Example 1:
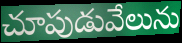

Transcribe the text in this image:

చూపుడువేలును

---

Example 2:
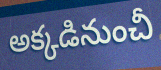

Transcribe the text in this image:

అక్కడినుంచీ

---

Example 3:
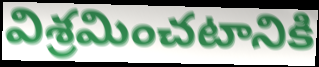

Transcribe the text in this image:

విశ్రమించటానికి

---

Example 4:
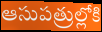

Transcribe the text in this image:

ఆసుపత్రుల్లోకి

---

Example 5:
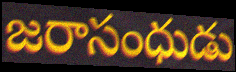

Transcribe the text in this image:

జరాసంధుడు